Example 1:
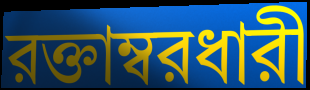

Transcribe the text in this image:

রক্তাম্বরধারী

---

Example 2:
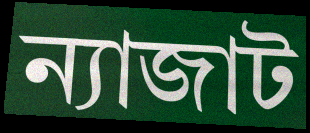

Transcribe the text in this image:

ন্যাজাট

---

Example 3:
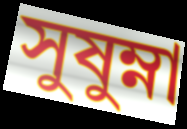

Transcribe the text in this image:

সুষুম্না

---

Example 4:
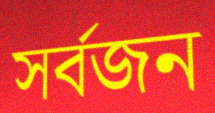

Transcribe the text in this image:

সর্বজন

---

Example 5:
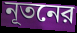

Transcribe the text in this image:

নূতনের